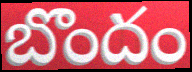
బొందం